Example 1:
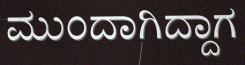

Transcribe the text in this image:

ಮುಂದಾಗಿದ್ದಾಗ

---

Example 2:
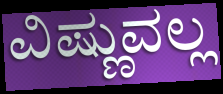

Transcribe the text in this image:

ವಿಷ್ಣುವಲ್ಲ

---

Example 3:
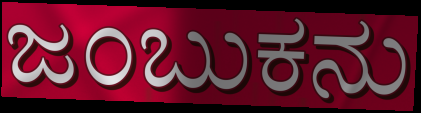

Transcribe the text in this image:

ಜಂಬುಕನು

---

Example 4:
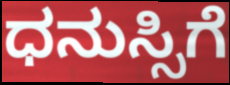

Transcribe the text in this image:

ಧನುಸ್ಸಿಗೆ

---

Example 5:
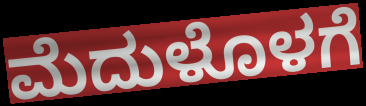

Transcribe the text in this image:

ಮೆದುಳೊಳಗೆ